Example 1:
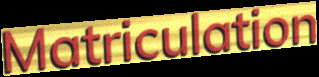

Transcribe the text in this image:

Matriculation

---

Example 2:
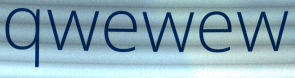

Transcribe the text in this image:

qwewew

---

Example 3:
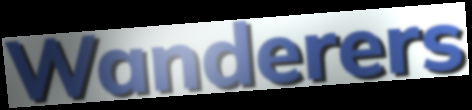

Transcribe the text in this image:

Wanderers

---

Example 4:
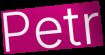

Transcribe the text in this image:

Petr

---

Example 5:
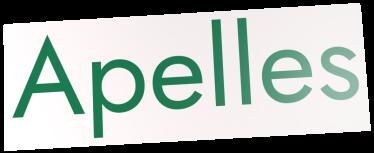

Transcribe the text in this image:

Apelles